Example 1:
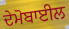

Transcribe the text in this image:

ਦੇਮੋਬਾਈਲ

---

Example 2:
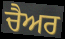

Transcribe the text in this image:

ਚੈਅਰ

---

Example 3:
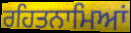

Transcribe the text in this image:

ਰਹਿਤਨਾਮਿਆਂ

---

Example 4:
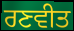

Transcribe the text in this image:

ਰਣਵੀਤ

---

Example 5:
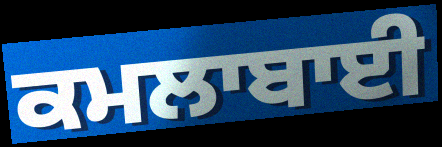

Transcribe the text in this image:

ਕਮਲਾਬਾਈ